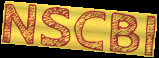
NSCBI